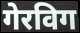
गेरविग